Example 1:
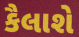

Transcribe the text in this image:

કૈલાશે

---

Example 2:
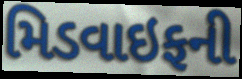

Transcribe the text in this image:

મિડવાઇફની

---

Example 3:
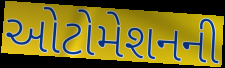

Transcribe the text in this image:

ઓટોમેશનની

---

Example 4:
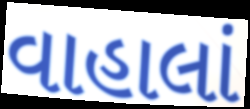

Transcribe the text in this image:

વાહાલાં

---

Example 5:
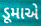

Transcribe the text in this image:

ડૂમાએ